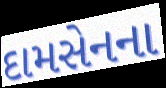
દામસેનના